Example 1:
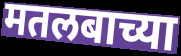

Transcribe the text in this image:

मतलबाच्या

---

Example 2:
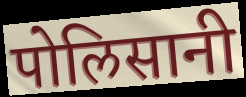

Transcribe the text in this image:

पोलिसानी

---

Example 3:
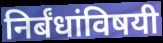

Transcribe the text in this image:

निर्बंधांविषयी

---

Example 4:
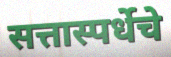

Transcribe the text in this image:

सत्तास्पर्धेचे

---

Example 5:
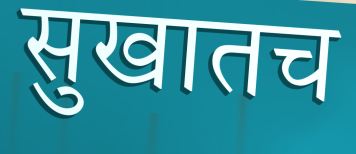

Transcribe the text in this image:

सुखातच